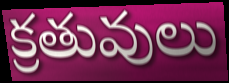
క్రతువులు